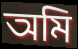
অমি